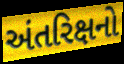
અંતરિક્ષનો